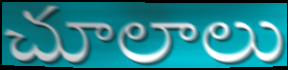
చూలాలు